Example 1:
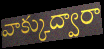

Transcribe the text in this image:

వాక్కుద్వారా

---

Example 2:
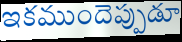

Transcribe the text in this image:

ఇకముందెప్పుడూ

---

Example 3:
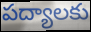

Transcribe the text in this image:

పద్యాలకు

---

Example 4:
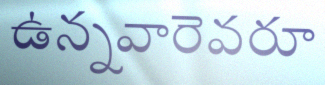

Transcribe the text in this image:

ఉన్నవారెవరూ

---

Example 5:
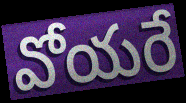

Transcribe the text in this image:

వోయరే